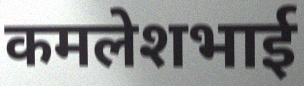
कमलेशभाई